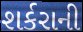
શર્કરાની